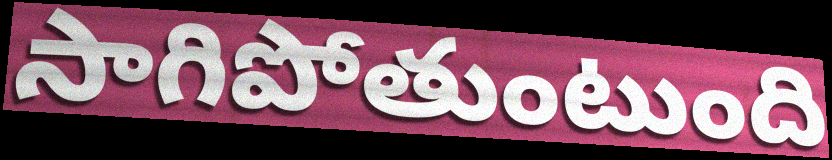
సాగిపోతుంటుంది